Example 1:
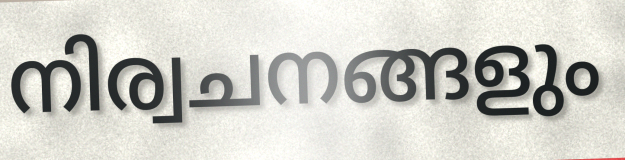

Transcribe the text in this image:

നിര്വചനങ്ങളും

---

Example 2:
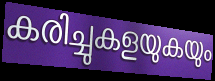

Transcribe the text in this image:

കരിച്ചുകളയുകയും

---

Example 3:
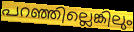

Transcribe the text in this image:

പറഞ്ഞില്ലെങ്കിലും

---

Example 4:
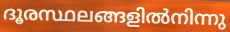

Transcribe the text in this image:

ദൂരസ്ഥലങ്ങളിൽനിന്നു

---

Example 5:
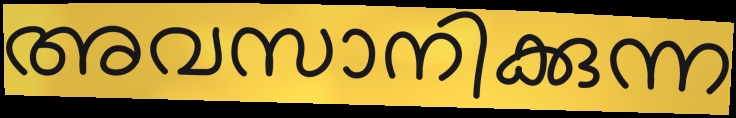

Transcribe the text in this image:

അവസാനിക്കുന്ന